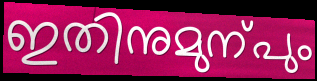
ഇതിനുമുന്പും